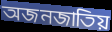
অজনজাতিয়